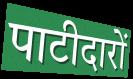
पाटीदारों